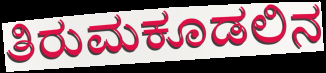
ತಿರುಮಕೂಡಲಿನ